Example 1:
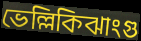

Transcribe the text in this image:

ভেল্লিকিঝাংগু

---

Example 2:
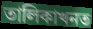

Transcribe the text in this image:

তালিকাখনত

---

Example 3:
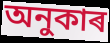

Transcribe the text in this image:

অনুকাৰ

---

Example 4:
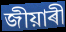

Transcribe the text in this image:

জীয়াৰী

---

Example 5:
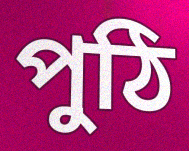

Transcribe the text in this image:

পুঠি